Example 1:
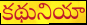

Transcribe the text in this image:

కథునియా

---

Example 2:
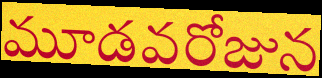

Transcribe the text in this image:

మూడవరోజున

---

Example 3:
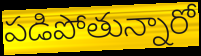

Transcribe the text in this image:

పడిపోతున్నారో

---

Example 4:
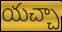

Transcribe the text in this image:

యచ్చా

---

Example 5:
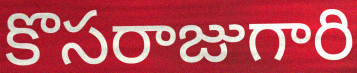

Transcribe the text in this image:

కొసరాజుగారి